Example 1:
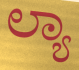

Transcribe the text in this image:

ಲ್ಯಾ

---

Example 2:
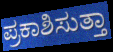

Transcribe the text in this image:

ಪ್ರಕಾಶಿಸುತ್ತಾ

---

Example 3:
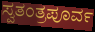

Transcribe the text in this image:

ಸ್ವತಂತ್ರಪೂರ್ವ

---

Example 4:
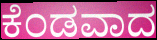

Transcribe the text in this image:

ಕೆಂಡವಾದ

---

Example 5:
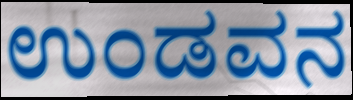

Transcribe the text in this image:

ಉಂಡವನ